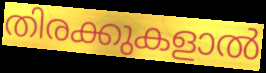
തിരക്കുകളാൽ